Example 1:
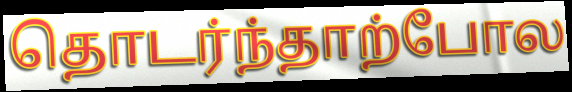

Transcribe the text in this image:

தொடர்ந்தாற்போல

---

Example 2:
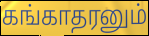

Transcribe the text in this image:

கங்காதரனும்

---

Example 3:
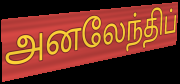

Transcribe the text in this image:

அனலேந்திப்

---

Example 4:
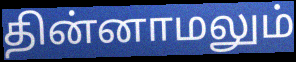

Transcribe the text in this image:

தின்னாமலும்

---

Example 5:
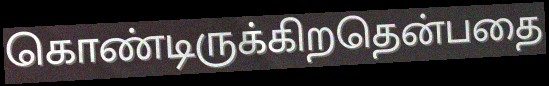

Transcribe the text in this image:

கொண்டிருக்கிறதென்பதை